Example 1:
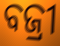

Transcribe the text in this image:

ବଜ୍ରୀ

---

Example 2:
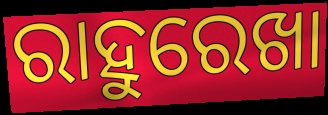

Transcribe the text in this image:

ରାହୁରେଖା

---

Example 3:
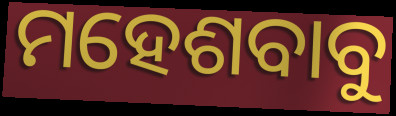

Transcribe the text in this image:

ମହେଶବାବୁ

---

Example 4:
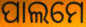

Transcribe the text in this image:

ପାଲମେ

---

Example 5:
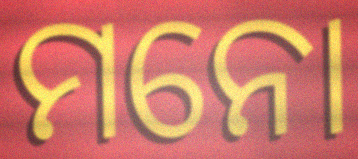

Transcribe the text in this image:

ମନୋ